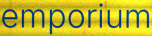
emporium